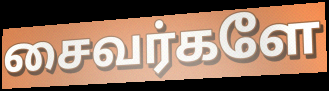
சைவர்களே